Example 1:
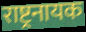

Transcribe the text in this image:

राष्ट्रनायक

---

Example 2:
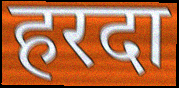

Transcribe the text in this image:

हरदा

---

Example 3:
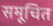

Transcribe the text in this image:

समूचित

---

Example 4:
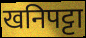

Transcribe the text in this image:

खनिपट्टा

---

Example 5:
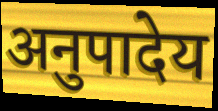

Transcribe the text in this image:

अनुपादेय